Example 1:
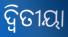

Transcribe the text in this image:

ଦ୍ବିତୀୟା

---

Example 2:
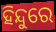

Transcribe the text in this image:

ହିନ୍ଦୁରେ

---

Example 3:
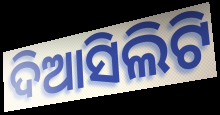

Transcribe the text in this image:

ଦିଆସିଲିଟି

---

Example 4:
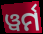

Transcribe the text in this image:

ୱର୍ମ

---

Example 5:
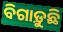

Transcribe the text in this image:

ବିଗାଡ଼ୁଛି